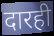
दारही